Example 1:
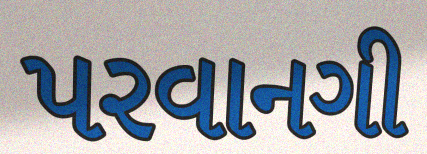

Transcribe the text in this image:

પરવાનગી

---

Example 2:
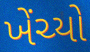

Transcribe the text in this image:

ખેંચ્યો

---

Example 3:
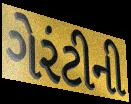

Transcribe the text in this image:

ગેરંટીની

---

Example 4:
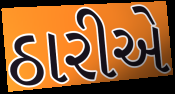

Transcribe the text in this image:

ઠારીએ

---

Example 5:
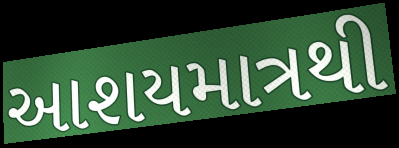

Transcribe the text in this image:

આશયમાત્રથી